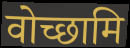
वोच्छामि